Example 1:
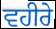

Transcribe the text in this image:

ਵਹੀਰੇ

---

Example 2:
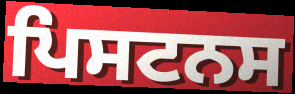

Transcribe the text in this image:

ਪਿਸਟਨਸ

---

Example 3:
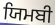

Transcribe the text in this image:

ਯਿਮਬੀ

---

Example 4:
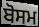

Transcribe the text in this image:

ਬੋਸਮ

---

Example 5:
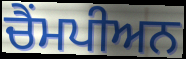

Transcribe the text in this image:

ਚੈਂਮਪੀਅਨ